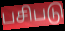
பசிபடு